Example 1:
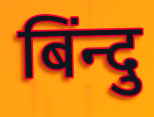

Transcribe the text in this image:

बिंन्दु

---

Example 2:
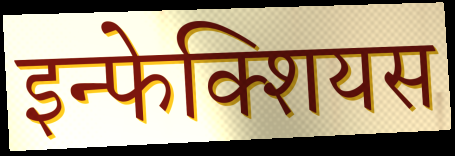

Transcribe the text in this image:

इन्फेक्शियस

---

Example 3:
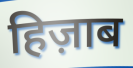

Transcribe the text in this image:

हिज़ाब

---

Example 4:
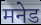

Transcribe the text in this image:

मनेड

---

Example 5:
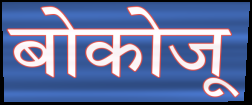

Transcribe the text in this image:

बोकोजू